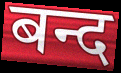
बन्द